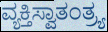
ವ್ಯಕ್ತಿಸ್ವಾತಂತ್ರ್ಯ